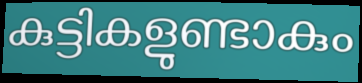
കുട്ടികളുണ്ടാകും